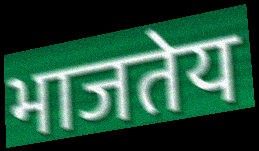
भाजतेय